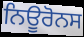
ਨਿਊਰੋਨਸ